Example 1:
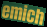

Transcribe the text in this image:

emich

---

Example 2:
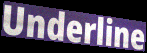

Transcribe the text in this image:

Underline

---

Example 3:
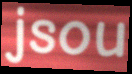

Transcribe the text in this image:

jsou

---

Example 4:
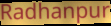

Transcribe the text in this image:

Radhanpur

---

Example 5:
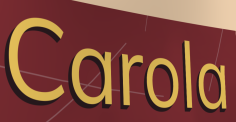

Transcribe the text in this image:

Carola